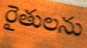
రైతులను